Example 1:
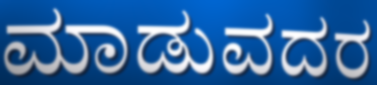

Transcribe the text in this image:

ಮಾಡುವದರ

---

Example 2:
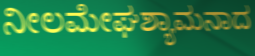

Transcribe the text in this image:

ನೀಲಮೇಘಶ್ಯಾಮನಾದ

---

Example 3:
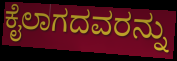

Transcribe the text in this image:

ಕೈಲಾಗದವರನ್ನು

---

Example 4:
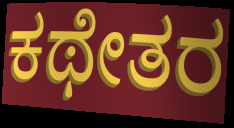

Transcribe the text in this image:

ಕಥೇತರ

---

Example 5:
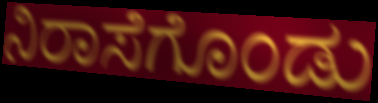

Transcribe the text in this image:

ನಿರಾಸೆಗೊಂಡು